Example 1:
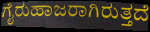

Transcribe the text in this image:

ಗೈರುಹಾಜರಾಗಿರುತ್ತದೆ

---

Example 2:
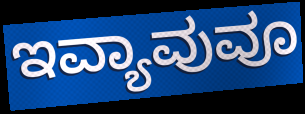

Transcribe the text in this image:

ಇವ್ಯಾವುವೂ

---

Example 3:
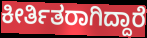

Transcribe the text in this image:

ಕೀರ್ತಿತರಾಗಿದ್ದಾರೆ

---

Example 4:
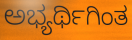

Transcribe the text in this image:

ಅಭ್ಯರ್ಥಿಗಿಂತ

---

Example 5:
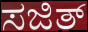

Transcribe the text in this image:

ಸಜಿತ್